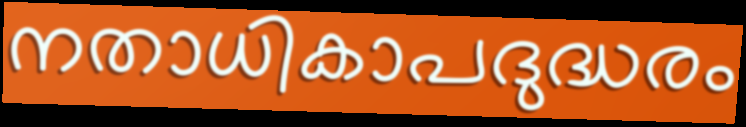
നതാധികാപദുദ്ധരം